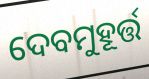
ଦେବମୁହୂର୍ତ୍ତ